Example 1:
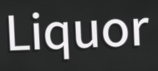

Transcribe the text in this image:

Liquor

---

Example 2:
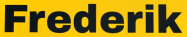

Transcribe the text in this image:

Frederik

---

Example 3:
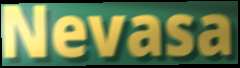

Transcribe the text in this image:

Nevasa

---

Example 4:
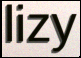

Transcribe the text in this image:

lizy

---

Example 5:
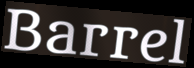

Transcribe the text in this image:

Barrel